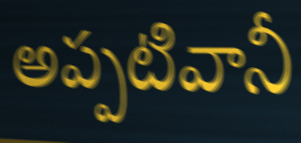
అప్పటివానీ